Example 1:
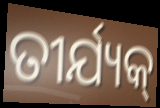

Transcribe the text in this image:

ତୀର୍ଯ୍ୟକ୍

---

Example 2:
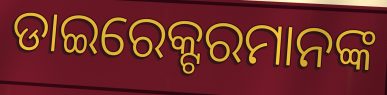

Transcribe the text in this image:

ଡାଇରେକ୍ଟରମାନଙ୍କ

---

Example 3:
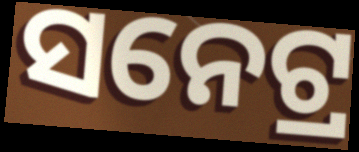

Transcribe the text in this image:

ସନେଟ୍ର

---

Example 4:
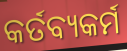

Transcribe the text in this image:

କର୍ତବ୍ଯକର୍ମ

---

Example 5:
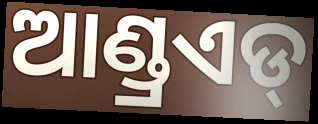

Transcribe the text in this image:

ଆଣ୍ଡ୍ରଏଡ୍